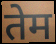
तेम